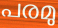
പരമു